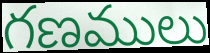
గణములు